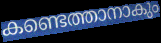
കണ്ടെത്താനാകും